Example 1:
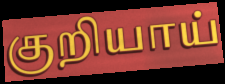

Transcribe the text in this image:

குறியாய்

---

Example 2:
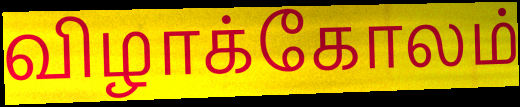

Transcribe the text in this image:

விழாக்கோலம்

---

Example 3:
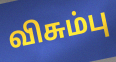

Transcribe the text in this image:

விசும்பு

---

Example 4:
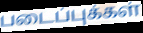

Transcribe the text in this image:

படைப்புக்கள்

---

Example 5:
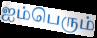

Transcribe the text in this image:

ஐம்பெரும்